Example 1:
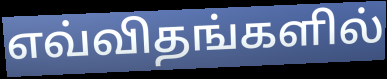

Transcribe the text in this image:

எவ்விதங்களில்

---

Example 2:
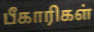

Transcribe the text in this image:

பீகாரிகள்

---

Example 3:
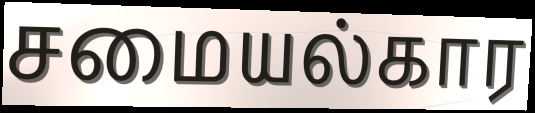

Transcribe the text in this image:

சமையல்கார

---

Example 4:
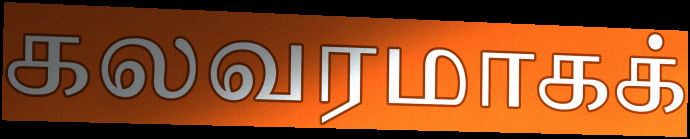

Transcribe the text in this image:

கலவரமாகக்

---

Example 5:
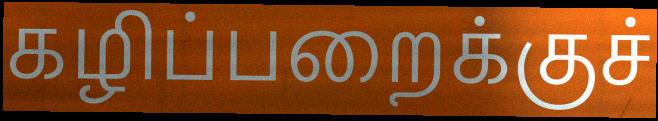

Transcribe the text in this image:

கழிப்பறைக்குச்